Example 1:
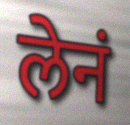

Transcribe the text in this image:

लेनं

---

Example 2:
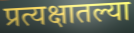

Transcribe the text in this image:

प्रत्यक्षातल्या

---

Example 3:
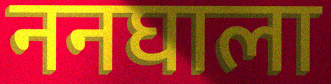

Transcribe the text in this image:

ननघाला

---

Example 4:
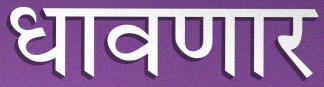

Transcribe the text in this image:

धावणार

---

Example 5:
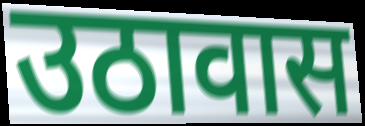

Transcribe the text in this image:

उठावास